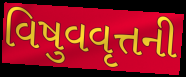
વિષુવવૃત્તની